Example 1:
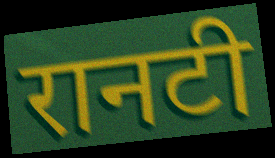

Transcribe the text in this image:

रानटी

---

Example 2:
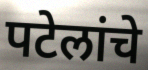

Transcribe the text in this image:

पटेलांचे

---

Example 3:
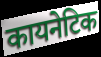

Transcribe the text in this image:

कायनेटिक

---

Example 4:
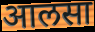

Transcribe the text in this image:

आलसा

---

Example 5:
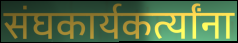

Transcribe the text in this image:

संघकार्यकर्त्यांना